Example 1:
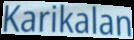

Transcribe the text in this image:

Karikalan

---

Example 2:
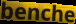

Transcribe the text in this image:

benche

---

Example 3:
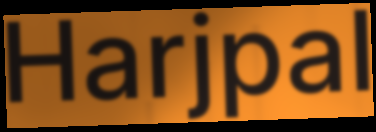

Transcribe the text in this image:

Harjpal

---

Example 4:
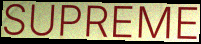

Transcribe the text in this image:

SUPREME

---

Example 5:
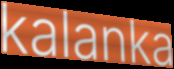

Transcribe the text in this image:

kalanka